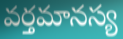
వర్తమానస్య